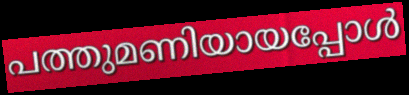
പത്തുമണിയായപ്പോൾ